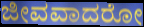
ಜೀವವಾದರೋ